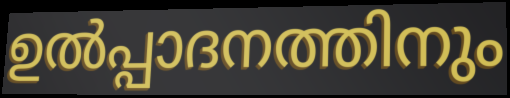
ഉൽപ്പാദനത്തിനും